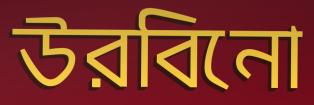
উরবিনো